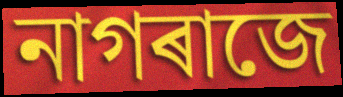
নাগৰাজে